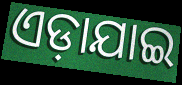
ଏଡ଼ାଯାଇ